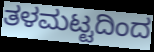
ತಳಮಟ್ಟದಿಂದ